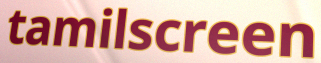
tamilscreen